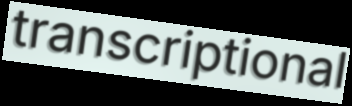
transcriptional